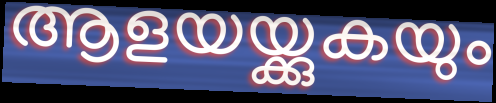
ആളയയ്ക്കുകയും